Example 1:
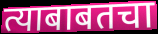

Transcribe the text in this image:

त्याबाबतचा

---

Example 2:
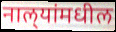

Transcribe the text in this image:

नाल्यांमधील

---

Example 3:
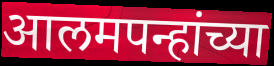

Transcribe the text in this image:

आलमपन्हांच्या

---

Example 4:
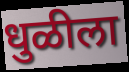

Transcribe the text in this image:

धुळीला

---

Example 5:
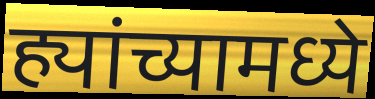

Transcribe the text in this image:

ह्यांच्यामध्ये